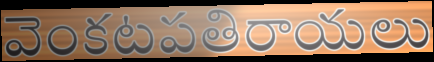
వెంకటపతిరాయలు